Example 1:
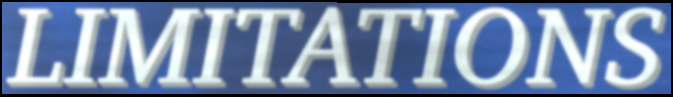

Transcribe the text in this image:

LIMITATIONS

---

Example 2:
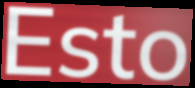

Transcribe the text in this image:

Esto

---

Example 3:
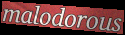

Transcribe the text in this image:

malodorous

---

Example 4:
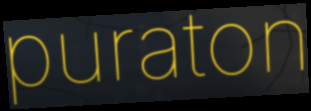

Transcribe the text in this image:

puraton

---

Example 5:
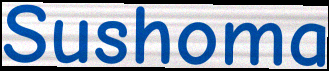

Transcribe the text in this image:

Sushoma